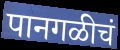
पानगळीचं